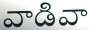
వాడివా